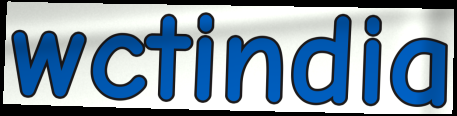
wctindia